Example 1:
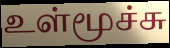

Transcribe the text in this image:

உள்மூச்சு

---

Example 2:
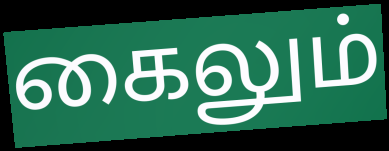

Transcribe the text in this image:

கைலும்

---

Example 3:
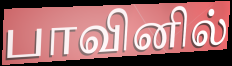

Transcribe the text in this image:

பாவினில்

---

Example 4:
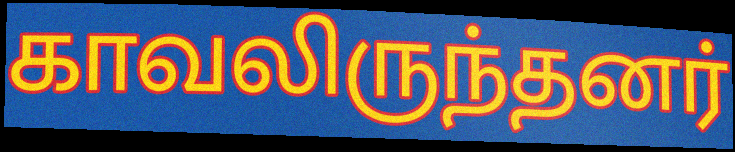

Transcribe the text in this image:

காவலிருந்தனர்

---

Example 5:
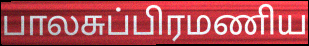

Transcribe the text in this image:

பாலசுப்பிரமணிய